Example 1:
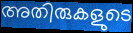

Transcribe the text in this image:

അതിരുകളുടെ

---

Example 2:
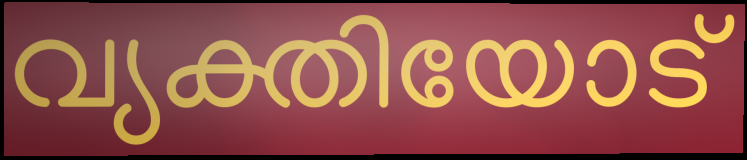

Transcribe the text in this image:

വ്യക്തിയോട്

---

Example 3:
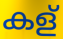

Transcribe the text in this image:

കള്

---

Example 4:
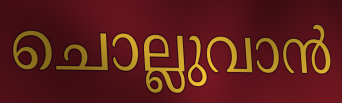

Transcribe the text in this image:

ചൊല്ലുവാൻ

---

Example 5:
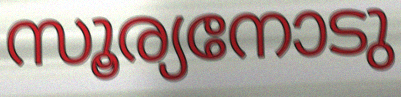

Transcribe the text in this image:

സൂര്യനോടു